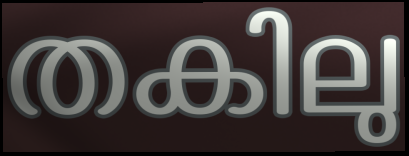
തകിലു